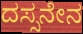
ದಸ್ಸನೇನ